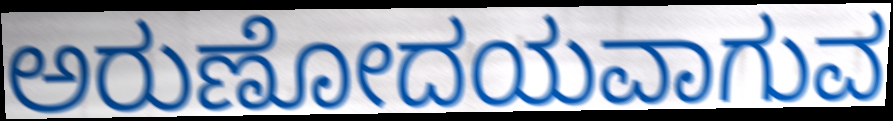
ಅರುಣೋದಯವಾಗುವ